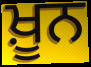
ਖ਼ੂਨ